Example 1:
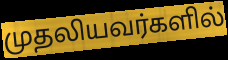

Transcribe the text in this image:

முதலியவர்களில்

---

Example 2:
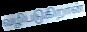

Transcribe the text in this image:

வழிபடுகிறான்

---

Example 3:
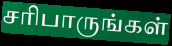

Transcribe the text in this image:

சரிபாருங்கள்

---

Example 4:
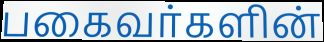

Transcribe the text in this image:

பகைவர்களின்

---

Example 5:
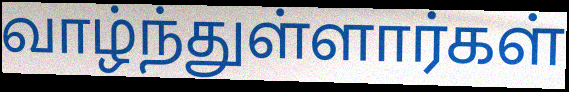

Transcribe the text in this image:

வாழ்ந்துள்ளார்கள்